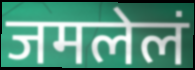
जमलेलं